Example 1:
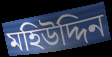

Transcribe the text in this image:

মহিউদ্দিন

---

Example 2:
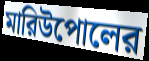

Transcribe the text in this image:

মারিউপোলের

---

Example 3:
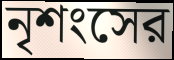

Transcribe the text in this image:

নৃশংসের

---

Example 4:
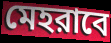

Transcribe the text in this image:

মেহরাবে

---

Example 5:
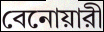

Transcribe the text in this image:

বেনোয়ারী